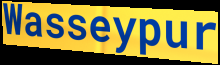
Wasseypur